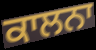
ਕਾਲਨਾ